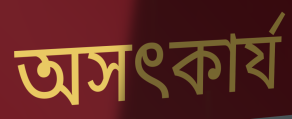
অসৎকার্য